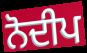
ਨੋਦੀਪ